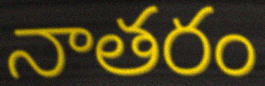
నాతరం